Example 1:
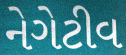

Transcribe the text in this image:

નેગેટીવ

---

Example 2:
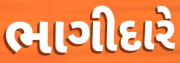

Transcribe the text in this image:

ભાગીદારે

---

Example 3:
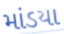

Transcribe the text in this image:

માંડયા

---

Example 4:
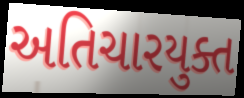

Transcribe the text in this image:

અતિચારયુક્ત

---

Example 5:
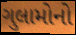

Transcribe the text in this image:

ગુલામોનો